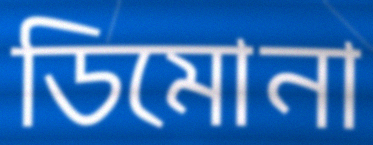
ডিমোনা